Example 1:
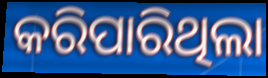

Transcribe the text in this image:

କରିପାରିଥିଲା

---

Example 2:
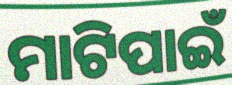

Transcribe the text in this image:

ମାଟିପାଇଁ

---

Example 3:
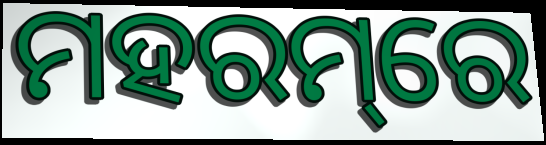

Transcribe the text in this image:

ମହରମ୍‌ରେ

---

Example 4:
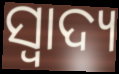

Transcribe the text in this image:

ସ୍ଵାଦ୍ୟ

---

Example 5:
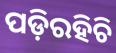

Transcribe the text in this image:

ପଡ଼ିରହିଚି